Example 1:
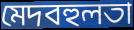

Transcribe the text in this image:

মেদবহুলতা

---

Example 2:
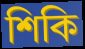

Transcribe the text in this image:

শিকি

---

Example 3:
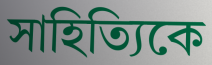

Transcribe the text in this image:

সাহিত্যিকে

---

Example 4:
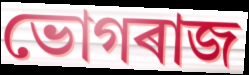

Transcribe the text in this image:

ভোগৰাজ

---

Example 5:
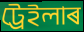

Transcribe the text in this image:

ট্ৰেইলাৰ